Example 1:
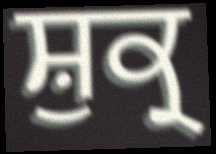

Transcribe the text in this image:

ਸ਼ੁਕ੍ਰ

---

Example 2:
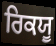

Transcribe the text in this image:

ਰਿਕਯੂ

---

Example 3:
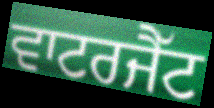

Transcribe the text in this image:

ਵਾਟਰਜੈੱਟ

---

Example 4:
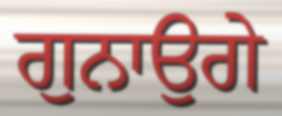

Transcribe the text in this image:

ਗੁਨਾਉਗੇ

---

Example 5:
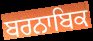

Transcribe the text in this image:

ਬਰਨਾਬਿਕ